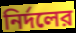
নির্দলের